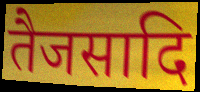
तैजसादि